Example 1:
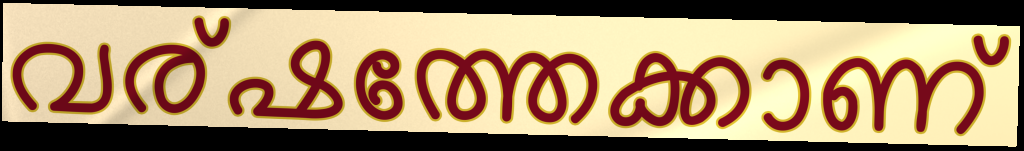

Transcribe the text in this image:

വര്ഷത്തേക്കാണ്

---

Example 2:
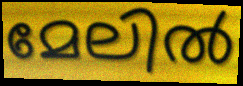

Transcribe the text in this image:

മേലിൽ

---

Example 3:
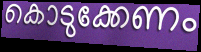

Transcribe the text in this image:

കൊടുക്കേണം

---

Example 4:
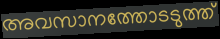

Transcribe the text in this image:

അവസാനത്തോടടുത്ത്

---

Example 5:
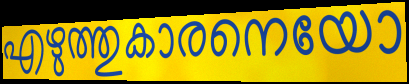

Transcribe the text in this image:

എഴുത്തുകാരനെയോ